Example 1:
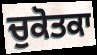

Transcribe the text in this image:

ਚੁਕੋਤਕਾ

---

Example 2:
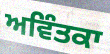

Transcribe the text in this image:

ਅਵਿੰਤਕਾ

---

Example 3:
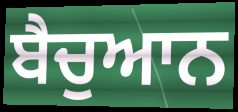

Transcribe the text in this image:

ਬੈਚੁਆਨ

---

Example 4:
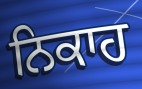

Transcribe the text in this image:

ਨਿਕਾਹ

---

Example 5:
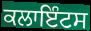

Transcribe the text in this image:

ਕਲਾਇੰਟਸ